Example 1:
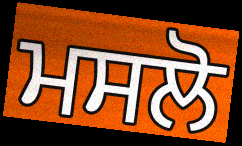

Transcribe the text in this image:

ਮਸਲੋ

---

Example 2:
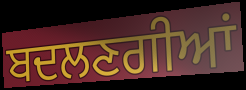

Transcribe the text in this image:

ਬਦਲਣਗੀਆਂ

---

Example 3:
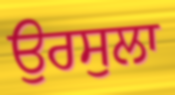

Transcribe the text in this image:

ਉਰਸੁਲਾ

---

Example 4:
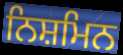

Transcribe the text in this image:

ਨਿਸ਼ਮਿਨ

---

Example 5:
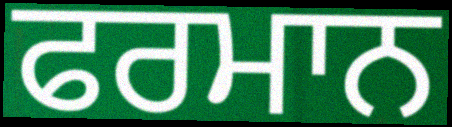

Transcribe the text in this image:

ਫਰਮਾਨ